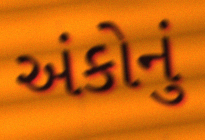
અંકોનું